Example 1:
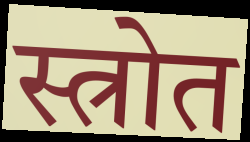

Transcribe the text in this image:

स्त्रोत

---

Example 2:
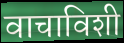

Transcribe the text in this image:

वाचाविशी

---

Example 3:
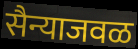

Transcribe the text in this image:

सैन्याजवळ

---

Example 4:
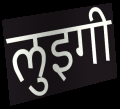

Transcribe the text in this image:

लुइगी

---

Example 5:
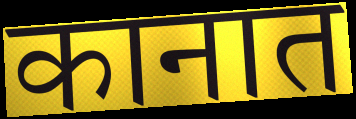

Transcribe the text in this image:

कानात